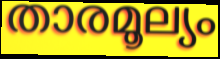
താരമൂല്യം